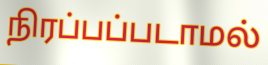
நிரப்பப்படாமல்